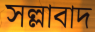
সল্লাবাদ